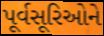
પૂર્વસૂરિઓને